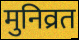
मुनिव्रत